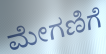
ಮೇಗಣಿಗೆ